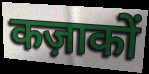
कज़ाकों